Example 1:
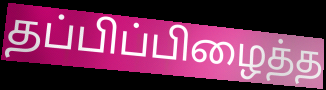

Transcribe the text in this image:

தப்பிப்பிழைத்த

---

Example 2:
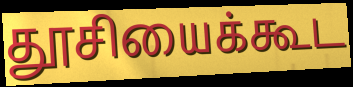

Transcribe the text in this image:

தூசியைக்கூட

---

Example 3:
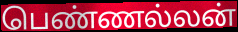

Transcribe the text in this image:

பெண்ணல்லன்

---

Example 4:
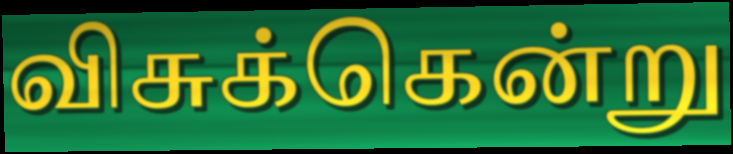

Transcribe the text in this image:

விசுக்கென்று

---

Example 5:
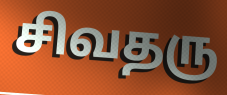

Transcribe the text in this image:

சிவதரு